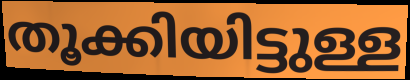
തൂക്കിയിട്ടുള്ള